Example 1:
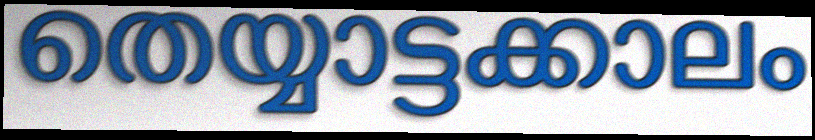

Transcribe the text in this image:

തെയ്യാട്ടക്കാലം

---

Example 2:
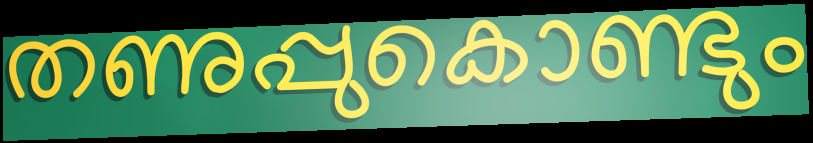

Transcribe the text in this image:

തണുപ്പുകൊണ്ടും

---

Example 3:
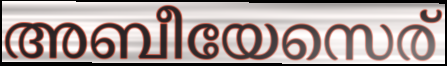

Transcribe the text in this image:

അബീയേസെര്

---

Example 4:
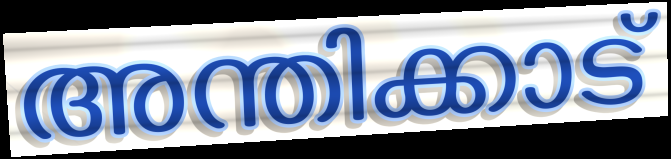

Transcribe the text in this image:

അന്തിക്കാട്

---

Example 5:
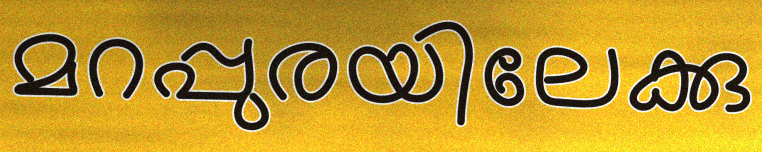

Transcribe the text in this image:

മറപ്പുരയിലേക്കു